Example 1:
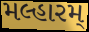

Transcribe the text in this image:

મલ્હારમ્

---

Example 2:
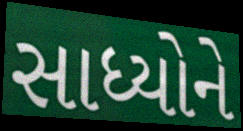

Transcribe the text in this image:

સાધ્યોને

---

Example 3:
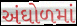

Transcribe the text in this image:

અંઘોળમાં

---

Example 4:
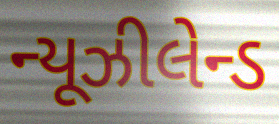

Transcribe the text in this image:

ન્યૂઝીલેન્ડ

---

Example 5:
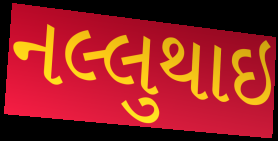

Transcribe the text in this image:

નલ્લુથાઇ